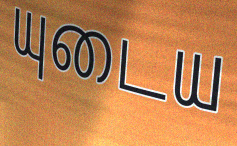
யுடைய